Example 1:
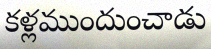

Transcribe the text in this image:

కళ్లముందుంచాడు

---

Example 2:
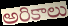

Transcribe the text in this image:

అరికాలు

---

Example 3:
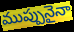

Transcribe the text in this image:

ముప్పునైనా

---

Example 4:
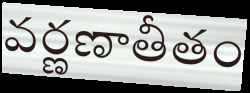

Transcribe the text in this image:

వర్ణణాతీతం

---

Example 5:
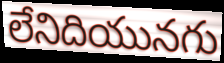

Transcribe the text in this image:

లేనిదియునగు